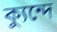
ক্যুন্দে